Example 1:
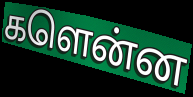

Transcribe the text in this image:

களென்ன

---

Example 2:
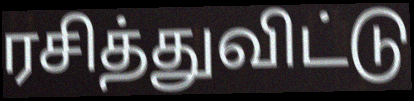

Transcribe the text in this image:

ரசித்துவிட்டு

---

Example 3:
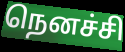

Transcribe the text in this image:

நெனச்சி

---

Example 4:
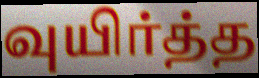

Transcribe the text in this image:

வுயிர்த்த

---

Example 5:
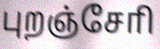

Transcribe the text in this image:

புறஞ்சேரி